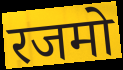
रजमो